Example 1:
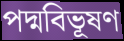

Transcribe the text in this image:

পদ্মবিভূষণ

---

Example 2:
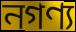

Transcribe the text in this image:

নগণ্য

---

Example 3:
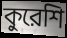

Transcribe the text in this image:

কুরেশি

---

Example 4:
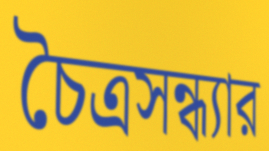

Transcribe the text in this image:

চৈত্রসন্ধ্যার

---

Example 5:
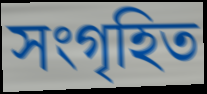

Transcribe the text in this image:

সংগৃহিত